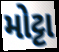
મોટ્ટા